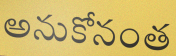
అనుకోనంత